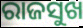
ରାଜସୁଖ